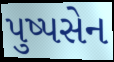
પુષ્પસેન